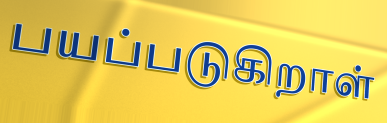
பயப்படுகிறாள்